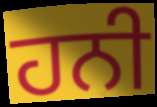
ਹਨੀ